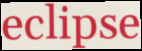
eclipse